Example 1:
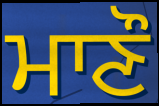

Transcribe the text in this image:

ਮਾਣੌ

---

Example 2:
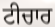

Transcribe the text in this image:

ਟੀਚਾਰ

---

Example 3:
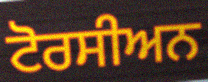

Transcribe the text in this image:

ਟੋਰਸੀਅਨ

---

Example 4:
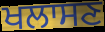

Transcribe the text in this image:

ਖਲਾਸਣ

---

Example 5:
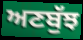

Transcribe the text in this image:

ਅਣਬੁੱਝ